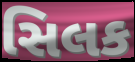
સિલક